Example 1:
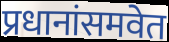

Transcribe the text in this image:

प्रधानांसमवेत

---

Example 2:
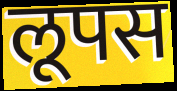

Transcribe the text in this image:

लूपस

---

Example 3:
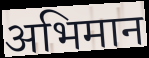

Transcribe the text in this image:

अभिमान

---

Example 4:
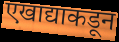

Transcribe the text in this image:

एखाद्याकडून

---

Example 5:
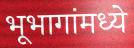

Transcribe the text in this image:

भूभागांमध्ये